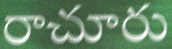
రాచూరు